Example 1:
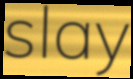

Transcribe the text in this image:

slay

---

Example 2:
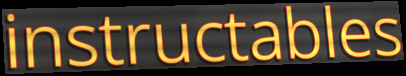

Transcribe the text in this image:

instructables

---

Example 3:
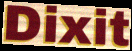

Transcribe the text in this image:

Dixit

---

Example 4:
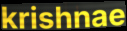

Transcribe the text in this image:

krishnae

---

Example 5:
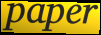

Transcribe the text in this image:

paper